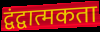
द्वंद्वात्मकता